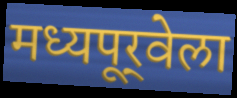
मध्यपूर्वेला